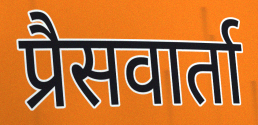
प्रैसवार्ता